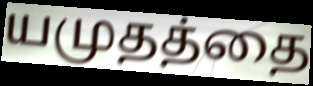
யமுதத்தை